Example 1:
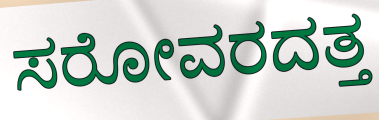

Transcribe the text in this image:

ಸರೋವರದತ್ತ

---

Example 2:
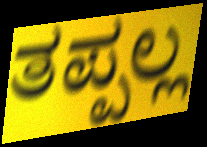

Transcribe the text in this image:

ತಪ್ಪಲ್ಲ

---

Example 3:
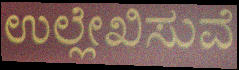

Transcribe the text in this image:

ಉಲ್ಲೇಖಿಸುವೆ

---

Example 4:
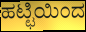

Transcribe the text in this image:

ಹಟ್ಟಿಯಿಂದ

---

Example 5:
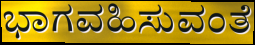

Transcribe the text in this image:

ಭಾಗವಹಿಸುವಂತೆ